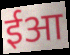
ईआ